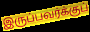
இருப்பவர்க்குப்